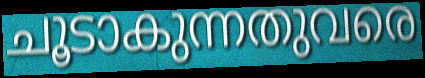
ചൂടാകുന്നതുവരെ